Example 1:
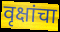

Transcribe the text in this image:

वृक्षांचा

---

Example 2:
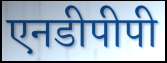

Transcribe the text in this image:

एनडीपीपी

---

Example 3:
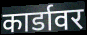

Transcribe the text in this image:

कार्डावर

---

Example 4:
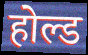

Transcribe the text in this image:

होल्ड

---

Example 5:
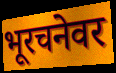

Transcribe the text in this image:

भूरचनेवर